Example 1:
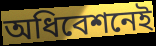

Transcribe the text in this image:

অধিবেশনেই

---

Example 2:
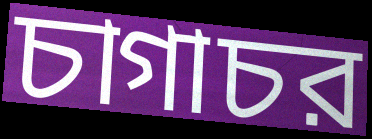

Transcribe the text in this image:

চাগাচর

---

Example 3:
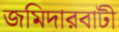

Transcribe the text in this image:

জমিদারবাটী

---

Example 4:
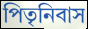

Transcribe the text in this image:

পিতৃনিবাস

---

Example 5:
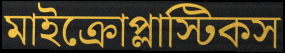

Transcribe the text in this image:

মাইক্রোপ্লাস্টিকস